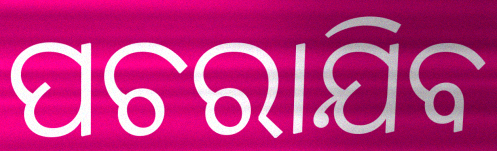
ପଚରାଯିବ